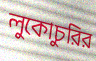
লুকোচুরির